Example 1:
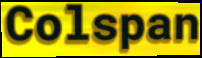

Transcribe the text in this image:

Colspan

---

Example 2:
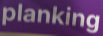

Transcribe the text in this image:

planking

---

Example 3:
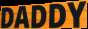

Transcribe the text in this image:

DADDY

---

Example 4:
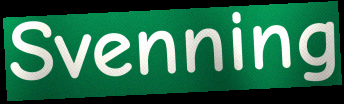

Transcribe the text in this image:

Svenning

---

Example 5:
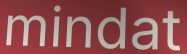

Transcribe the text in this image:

mindat